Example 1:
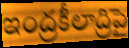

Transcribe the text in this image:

ఇంద్రకీలాద్రిపై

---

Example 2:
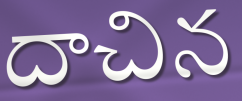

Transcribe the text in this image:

దాచిన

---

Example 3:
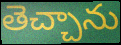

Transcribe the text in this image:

తెచ్చాను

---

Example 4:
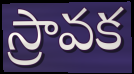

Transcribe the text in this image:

స్రావక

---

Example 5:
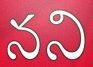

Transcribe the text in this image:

నని